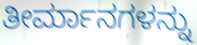
ತೀರ್ಮಾನಗಳನ್ನು